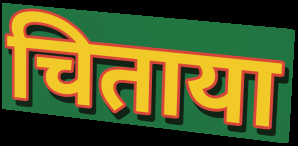
चिताया